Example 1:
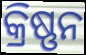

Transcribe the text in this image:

କ୍ରିଷ୍ଣନ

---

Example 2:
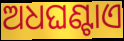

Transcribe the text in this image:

ଅଧଘଣ୍ଟାଏ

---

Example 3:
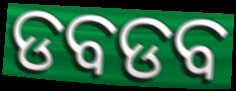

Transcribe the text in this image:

ଡବଡବ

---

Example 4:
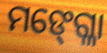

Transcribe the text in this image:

ମଙ୍ଗ୍ଳୋ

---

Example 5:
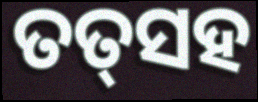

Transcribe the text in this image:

ତତ୍‌ସହ